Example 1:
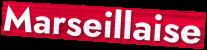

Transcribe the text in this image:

Marseillaise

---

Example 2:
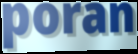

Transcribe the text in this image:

poran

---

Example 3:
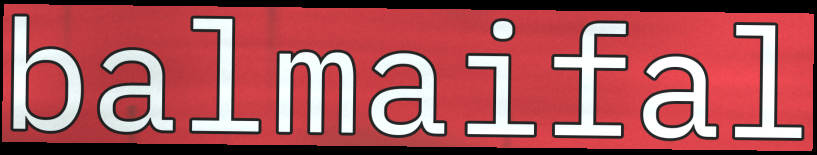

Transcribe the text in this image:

balmaifal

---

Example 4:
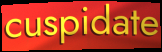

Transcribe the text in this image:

cuspidate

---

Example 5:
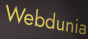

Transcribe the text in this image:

Webdunia